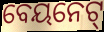
ବେୟନେଟ୍